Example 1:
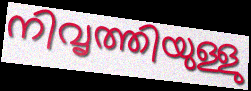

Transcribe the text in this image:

നിവൃത്തിയുള്ളു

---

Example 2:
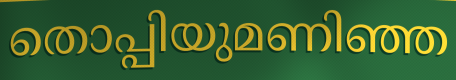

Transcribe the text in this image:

തൊപ്പിയുമണിഞ്ഞ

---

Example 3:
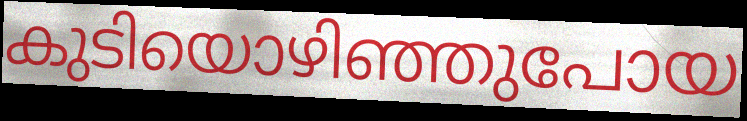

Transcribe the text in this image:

കുടിയൊഴിഞ്ഞുപോയ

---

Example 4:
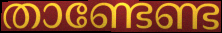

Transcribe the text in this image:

താണ്ടേണ്ട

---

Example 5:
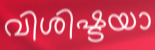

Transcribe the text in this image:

വിശിഷ്ടയാ